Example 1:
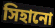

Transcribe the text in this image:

সিহানো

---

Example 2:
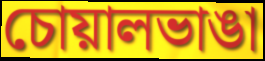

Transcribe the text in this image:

চোয়ালভাঙা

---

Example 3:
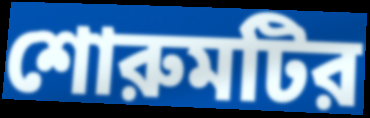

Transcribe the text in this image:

শোরুমটির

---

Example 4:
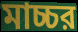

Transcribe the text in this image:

মাচ্চর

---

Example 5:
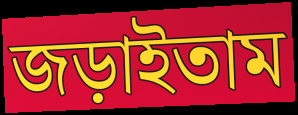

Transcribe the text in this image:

জড়াইতাম